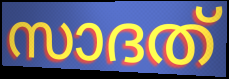
സാദത്